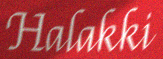
Halakki